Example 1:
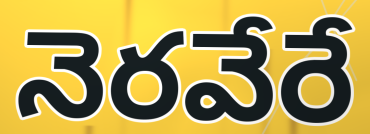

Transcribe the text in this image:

నెరవేరే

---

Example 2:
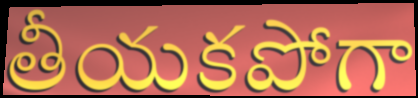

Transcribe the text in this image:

తీయకపోగా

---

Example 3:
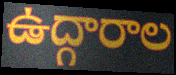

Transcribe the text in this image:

ఉద్గారాల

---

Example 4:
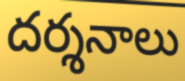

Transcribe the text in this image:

దర్శనాలు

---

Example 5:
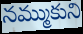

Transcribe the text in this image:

నమ్ముకుని